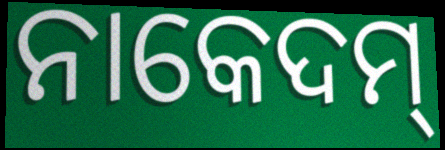
ନାକେଦମ୍